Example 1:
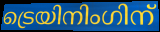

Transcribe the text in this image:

ട്രെയിനിംഗിന്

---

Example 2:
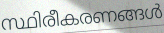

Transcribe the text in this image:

സ്ഥിരീകരണങ്ങൾ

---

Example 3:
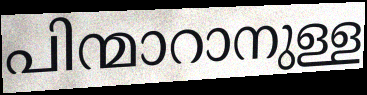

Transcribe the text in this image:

പിന്മാറാനുള്ള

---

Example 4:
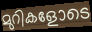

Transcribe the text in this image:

മുറികളോടെ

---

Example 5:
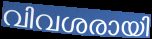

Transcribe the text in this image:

വിവശരായി